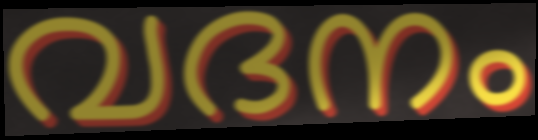
വദനം